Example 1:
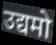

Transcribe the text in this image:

उद्यमो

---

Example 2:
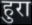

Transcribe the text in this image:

हुरा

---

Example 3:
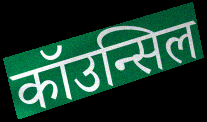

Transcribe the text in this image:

कॉउन्सिल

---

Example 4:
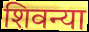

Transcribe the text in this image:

शिवन्या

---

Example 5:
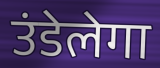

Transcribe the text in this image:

उंडेलेगा